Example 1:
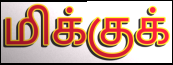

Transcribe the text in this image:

மிக்குக்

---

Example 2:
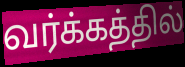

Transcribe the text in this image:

வர்க்கத்தில்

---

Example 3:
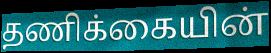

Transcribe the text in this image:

தணிக்கையின்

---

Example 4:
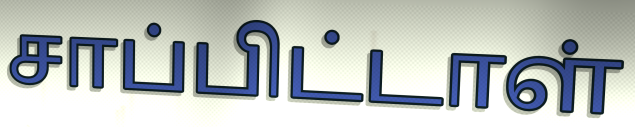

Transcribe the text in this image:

சாப்பிட்டாள்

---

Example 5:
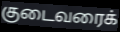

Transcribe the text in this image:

குடைவரைக்